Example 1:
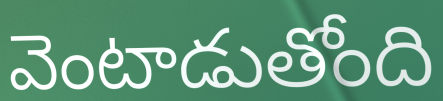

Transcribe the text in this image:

వెంటాడుతోంది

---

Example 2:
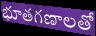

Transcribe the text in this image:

భూతగణాలతో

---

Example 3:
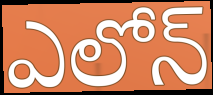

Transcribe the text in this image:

ఎలోన్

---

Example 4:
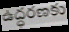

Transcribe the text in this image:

ఉద్ధరణకు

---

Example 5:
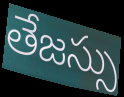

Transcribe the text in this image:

తేజస్సు